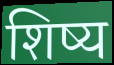
शिष्य